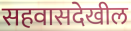
सहवासदेखील